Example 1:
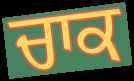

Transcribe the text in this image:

ਚਾਕ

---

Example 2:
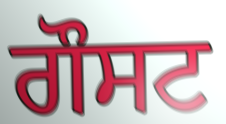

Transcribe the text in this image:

ਗੌਸਟ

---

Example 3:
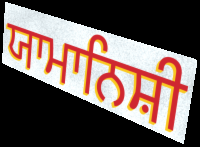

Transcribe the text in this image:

ਯਾਮਾਨਿਸ਼ੀ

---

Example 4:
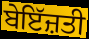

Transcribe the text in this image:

ਬੇਇੱਜ਼ਤੀ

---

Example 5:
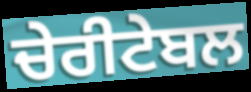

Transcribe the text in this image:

ਚੇਰੀਟੇਬਲ